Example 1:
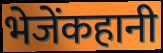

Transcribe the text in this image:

भेजेंकहानी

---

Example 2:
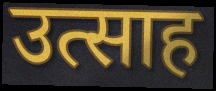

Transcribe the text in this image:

उत्साह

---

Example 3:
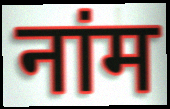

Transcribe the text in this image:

नांम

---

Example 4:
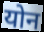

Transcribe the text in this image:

योन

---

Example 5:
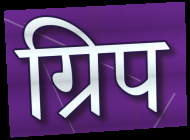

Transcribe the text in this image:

ग्रिप